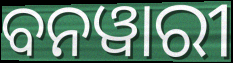
ବନୱାରୀ